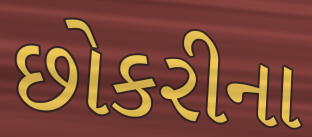
છોકરીના